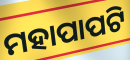
ମହାପାପଟି